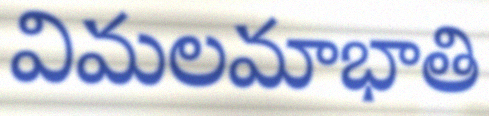
విమలమాభాతి